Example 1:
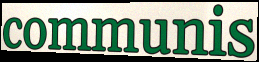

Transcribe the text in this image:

communis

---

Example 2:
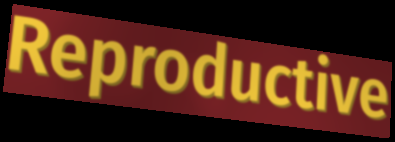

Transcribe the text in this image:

Reproductive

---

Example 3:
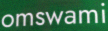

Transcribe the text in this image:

omswami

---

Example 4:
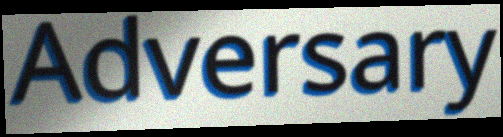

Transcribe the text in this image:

Adversary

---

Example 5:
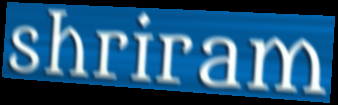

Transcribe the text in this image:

shriram